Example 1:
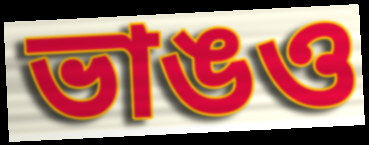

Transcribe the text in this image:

ভাঙও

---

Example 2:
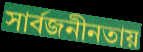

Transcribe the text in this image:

সার্বজনীনতায়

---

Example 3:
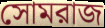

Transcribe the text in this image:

সোমরাজ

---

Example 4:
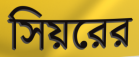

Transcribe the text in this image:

সিয়রের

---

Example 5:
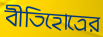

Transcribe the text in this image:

বীতিহোত্রের